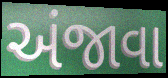
અંજાવા